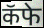
कॅफे